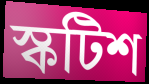
স্কটিশ